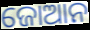
ଜୋଆନ